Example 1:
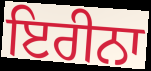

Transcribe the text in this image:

ਇਰੀਨਾ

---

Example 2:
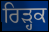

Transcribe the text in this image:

ਰਿੜ੍ਹਕ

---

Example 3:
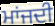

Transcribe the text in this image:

ਮਾਂਜਦੀ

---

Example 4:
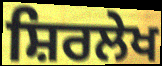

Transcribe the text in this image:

ਸ਼ਿਰਲੇਖ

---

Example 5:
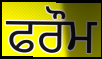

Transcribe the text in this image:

ਫਰੌਮ